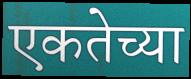
एकतेच्या